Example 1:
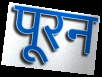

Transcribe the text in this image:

पूरन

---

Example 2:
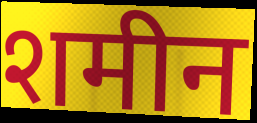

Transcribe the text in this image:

शमीन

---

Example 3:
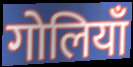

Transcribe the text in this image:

गोलियाँ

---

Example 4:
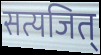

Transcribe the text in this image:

सत्यजित्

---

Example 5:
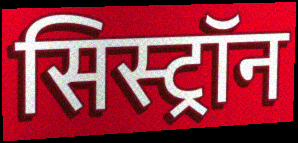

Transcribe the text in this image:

सिस्ट्रॉन